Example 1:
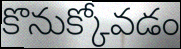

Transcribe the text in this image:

కొనుక్కోవడం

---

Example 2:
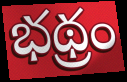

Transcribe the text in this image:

భథ్రం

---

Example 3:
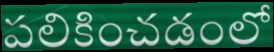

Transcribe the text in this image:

పలికించడంలో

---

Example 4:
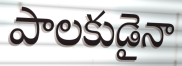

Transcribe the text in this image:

పాలకుడైనా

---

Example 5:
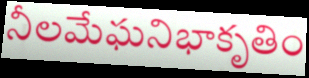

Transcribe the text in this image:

నీలమేఘనిభాకృతిం